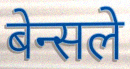
बेन्सले